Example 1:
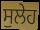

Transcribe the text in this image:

ਸੁਲੇਹ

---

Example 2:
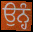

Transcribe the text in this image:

ਉਨ੍ਹੰ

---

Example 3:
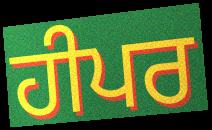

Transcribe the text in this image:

ਹੀਪਰ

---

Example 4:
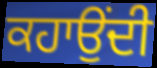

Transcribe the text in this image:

ਕਹਾਉਂਦੀ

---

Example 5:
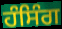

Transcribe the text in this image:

ਹੰਸਿੰਗ